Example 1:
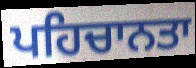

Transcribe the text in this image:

ਪਹਿਚਾਨਤਾ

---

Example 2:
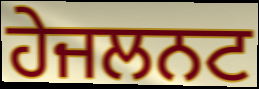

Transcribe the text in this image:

ਹੇਜਲਨਟ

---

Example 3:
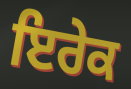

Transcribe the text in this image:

ਇਰੇਕ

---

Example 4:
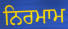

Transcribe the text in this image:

ਨਿਰਮਾਮ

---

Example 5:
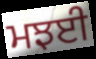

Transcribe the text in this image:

ਮਝਈ